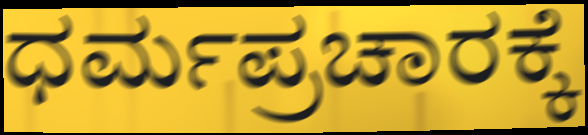
ಧರ್ಮಪ್ರಚಾರಕ್ಕೆ